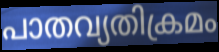
പാതവ്യതിക്രമം